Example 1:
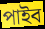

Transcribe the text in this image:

পাইব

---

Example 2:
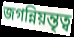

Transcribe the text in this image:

জগন্নিয়ন্তৃত্ব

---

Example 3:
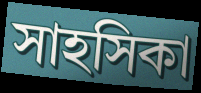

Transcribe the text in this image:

সাহসিকা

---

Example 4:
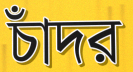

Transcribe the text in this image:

চাঁদর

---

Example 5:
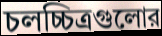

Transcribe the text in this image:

চলচ্চিত্রগুলোর